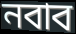
নবাব